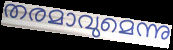
തരമാവുമെന്നു